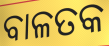
ବାଳତକ